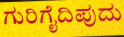
ಗುರಿಗೈದಿಪುದು